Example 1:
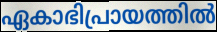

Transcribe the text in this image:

ഏകാഭിപ്രായത്തിൽ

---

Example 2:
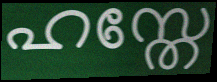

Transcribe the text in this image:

ഹസ്തേ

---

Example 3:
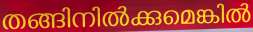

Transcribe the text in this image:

തങ്ങിനിൽക്കുമെങ്കിൽ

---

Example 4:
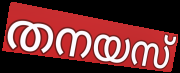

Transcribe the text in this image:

തനയസ്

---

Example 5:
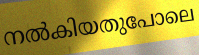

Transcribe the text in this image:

നൽകിയതുപോലെ